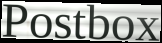
Postbox